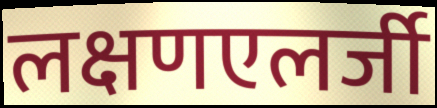
लक्षणएलर्जी